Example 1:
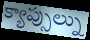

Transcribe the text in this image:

క్యాప్సుల్ను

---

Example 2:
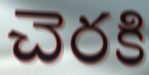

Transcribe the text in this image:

చెరకి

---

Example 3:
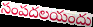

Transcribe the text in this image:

సంపదలయందు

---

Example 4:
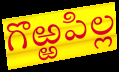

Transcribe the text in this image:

గొఱ్ఱపిల్ల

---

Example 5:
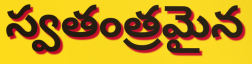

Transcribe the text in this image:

స్వతంత్రమైన